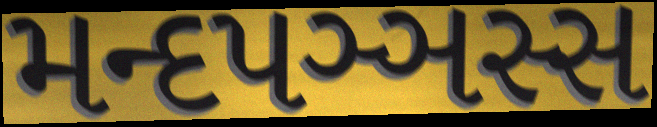
મન્દપઞ્ઞસ્સ